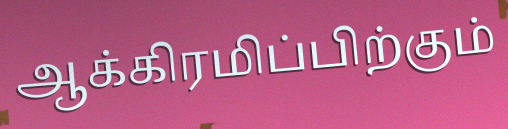
ஆக்கிரமிப்பிற்கும்